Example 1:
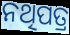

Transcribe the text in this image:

ନଥିପତ୍ର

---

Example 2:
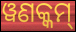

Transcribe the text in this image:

ୱଣକ୍କମ୍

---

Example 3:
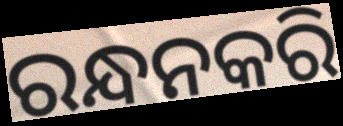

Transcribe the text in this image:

ରନ୍ଧନକରି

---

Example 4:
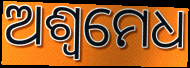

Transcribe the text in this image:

ଅଶ୍ୱମେଧ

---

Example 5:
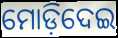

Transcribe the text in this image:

ମୋଡ଼ିଦେଇ